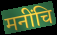
मनींचि